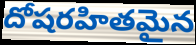
దోషరహితమైన